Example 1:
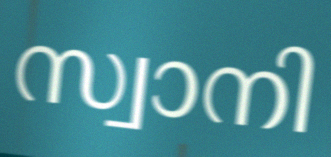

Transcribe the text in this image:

സ്വാനി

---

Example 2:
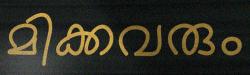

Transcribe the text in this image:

മിക്കവരും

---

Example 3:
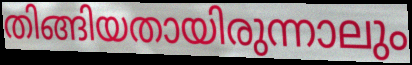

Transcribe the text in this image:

തിങ്ങിയതായിരുന്നാലും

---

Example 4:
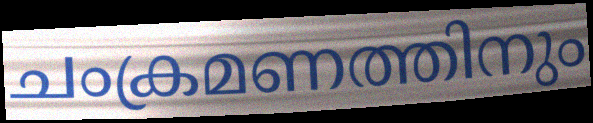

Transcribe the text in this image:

ചംക്രമണത്തിനും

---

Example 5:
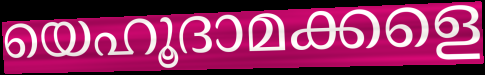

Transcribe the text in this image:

യെഹൂദാമക്കളെ